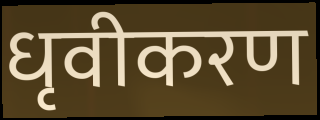
धृवीकरण